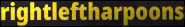
rightleftharpoons